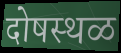
दोषस्थळ